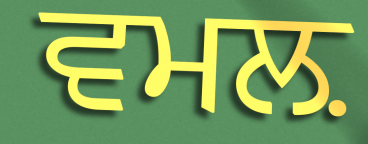
ਵਮਲ਼